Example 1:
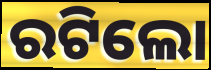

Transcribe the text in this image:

ରଟିଲୋ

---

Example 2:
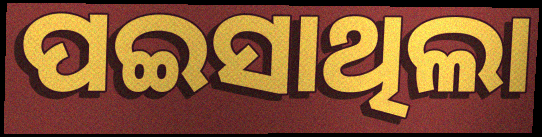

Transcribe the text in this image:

ପଇସାଥିଲା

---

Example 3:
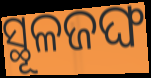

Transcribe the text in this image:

ସ୍ଥୂଳଜଙ୍ଘ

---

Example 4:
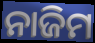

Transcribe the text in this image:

ନାଜିମ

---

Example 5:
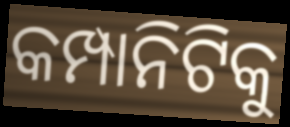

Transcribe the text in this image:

କମ୍ପାନିଟିକୁ